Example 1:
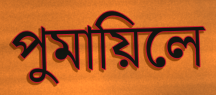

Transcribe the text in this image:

পুমায়িলে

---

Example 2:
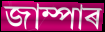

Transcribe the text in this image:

জাম্পাৰ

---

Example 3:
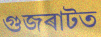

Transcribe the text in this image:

গুজৰাটত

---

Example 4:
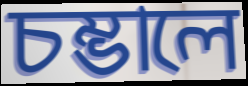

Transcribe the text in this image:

চম্ভালে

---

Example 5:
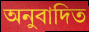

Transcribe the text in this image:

অনুবাদিত